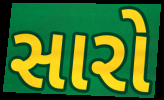
સારો